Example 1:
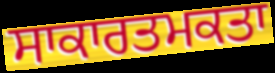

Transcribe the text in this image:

ਸਾਕਾਰਤਮਕਤਾ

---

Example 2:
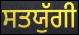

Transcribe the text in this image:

ਸਤਯੁੱਗੀ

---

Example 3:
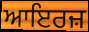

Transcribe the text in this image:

ਆਇਰਜ਼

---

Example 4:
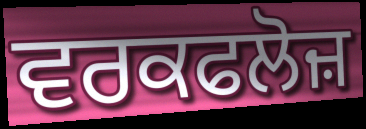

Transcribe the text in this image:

ਵਰਕਫਲੋਜ਼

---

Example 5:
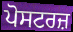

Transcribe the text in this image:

ਪੋਸਟਰਜ਼